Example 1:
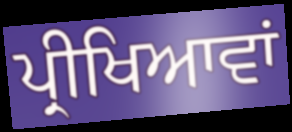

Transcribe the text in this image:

ਪ੍ਰੀਖਿਆਵਾਂ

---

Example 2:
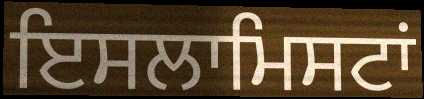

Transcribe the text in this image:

ਇਸਲਾਮਿਸਟਾਂ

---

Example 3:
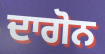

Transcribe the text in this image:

ਦਾਗੋਨ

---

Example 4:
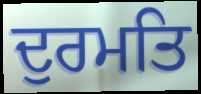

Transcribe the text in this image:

ਦੁਰਮਤਿ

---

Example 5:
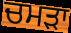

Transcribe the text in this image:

ਚਮੜਾ